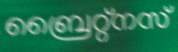
ബ്രൈറ്റ്നസ്